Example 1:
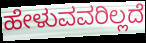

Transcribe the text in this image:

ಹೇಳುವವರಿಲ್ಲದೆ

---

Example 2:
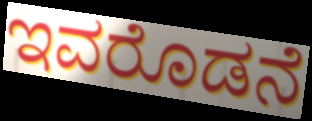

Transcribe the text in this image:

ಇವರೊಡನೆ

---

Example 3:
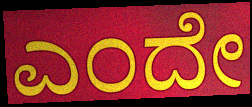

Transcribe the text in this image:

ಎಂದೇ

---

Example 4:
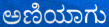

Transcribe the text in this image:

ಅಣಿಯಾಗು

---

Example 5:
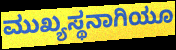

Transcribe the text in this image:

ಮುಖ್ಯಸ್ಥನಾಗಿಯೂ